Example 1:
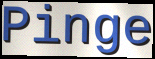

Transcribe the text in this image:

Pinge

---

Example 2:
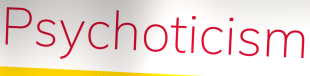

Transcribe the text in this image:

Psychoticism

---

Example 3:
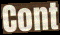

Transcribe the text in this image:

Cont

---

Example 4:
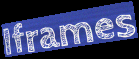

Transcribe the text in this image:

Iframes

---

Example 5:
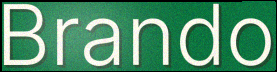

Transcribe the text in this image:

Brando